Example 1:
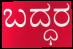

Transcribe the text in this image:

ಬದ್ಧರ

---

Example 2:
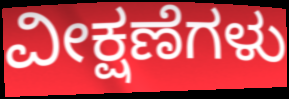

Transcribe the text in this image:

ವೀಕ್ಷಣೆಗಳು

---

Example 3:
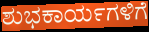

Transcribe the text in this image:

ಶುಭಕಾರ್ಯಗಳಿಗೆ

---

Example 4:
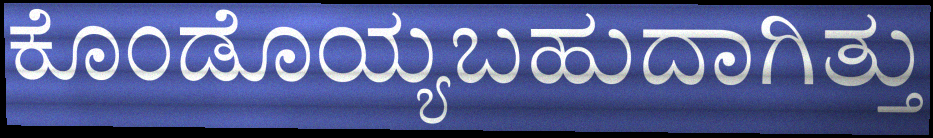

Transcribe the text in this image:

ಕೊಂಡೊಯ್ಯಬಹುದಾಗಿತ್ತು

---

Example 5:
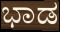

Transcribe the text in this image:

ಭಾಡ